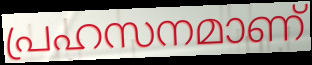
പ്രഹസനമാണ്